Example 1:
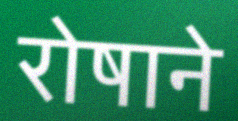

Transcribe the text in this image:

रोषाने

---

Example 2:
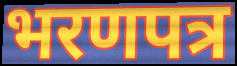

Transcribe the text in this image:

भरणपत्र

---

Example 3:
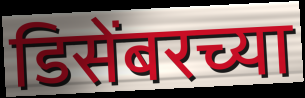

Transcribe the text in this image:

डिसेंबरच्या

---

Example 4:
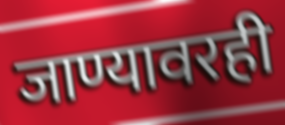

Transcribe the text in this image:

जाण्यावरही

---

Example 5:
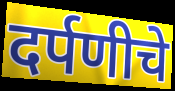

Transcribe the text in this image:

दर्पणीचे